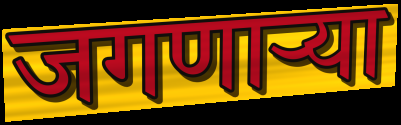
जगणार्‍या